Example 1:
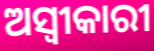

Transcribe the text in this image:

ଅସ୍ଵୀକାରୀ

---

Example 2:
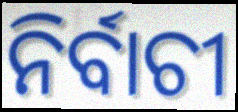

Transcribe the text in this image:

ନିର୍ବାଚୀ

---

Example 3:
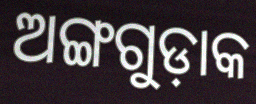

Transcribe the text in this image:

ଅଙ୍ଗଗୁଡ଼ାକ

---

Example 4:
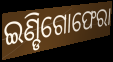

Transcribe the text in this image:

ଇଣ୍ଡିଗୋଫେରା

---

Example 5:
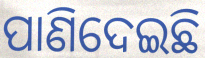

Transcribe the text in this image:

ପାଣିଦେଇଛି